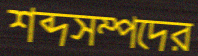
শব্দসম্পদের